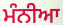
ਮੰਨੀਆ